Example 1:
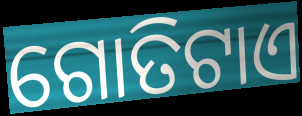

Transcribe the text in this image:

ଗୋତିଟାଏ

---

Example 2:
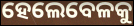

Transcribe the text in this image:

ହେଲେବେଳକୁ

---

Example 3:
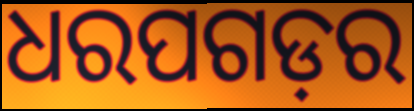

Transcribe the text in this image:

ଧରପଗଡ଼ର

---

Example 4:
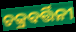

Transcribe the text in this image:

ଚକ୍ରବର୍ତ୍ତିନୀ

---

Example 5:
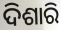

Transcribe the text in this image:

ଦିଶାରି